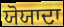
ਯੋਯਾਦਾ